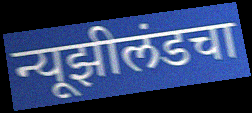
न्यूझीलंडचा